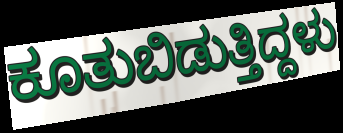
ಕೂತುಬಿಡುತ್ತಿದ್ದಳು